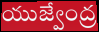
యుజ్వేంద్ర